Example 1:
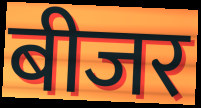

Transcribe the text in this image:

बीजर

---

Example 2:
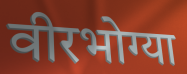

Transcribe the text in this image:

वीरभोग्या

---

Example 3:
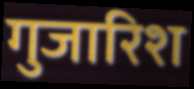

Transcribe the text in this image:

गुजारिश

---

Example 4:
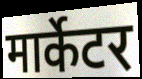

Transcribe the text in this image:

मार्केटर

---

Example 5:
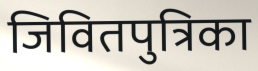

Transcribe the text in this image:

जिवितपुत्रिका